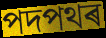
পদপথৰ